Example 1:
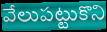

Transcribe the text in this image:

వేలుపట్టుకొని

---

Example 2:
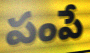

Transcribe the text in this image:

పంపే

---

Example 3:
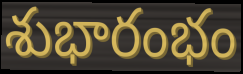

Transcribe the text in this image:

శుభారంభం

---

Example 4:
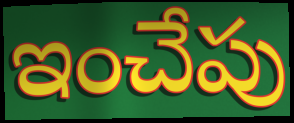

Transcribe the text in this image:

ఇంచేపు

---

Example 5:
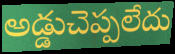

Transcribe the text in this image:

అడ్డుచెప్పలేదు